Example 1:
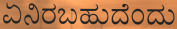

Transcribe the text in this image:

ಏನಿರಬಹುದೆಂದು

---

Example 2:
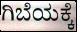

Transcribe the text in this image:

ಗಿಬೆಯಕ್ಕೆ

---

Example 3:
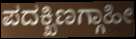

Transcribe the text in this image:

ಪದಕ್ಖಿಣಗ್ಗಾಹೀ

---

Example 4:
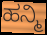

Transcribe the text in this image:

ಹನ್ಮಿ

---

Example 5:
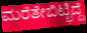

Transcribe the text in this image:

ಮರೆತೇಬಿಟ್ಟಿದ್ದೆ